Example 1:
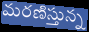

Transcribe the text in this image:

మరణిస్తున్న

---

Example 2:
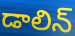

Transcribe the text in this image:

డాలిన్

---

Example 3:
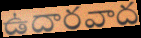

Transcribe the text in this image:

ఉదారవాద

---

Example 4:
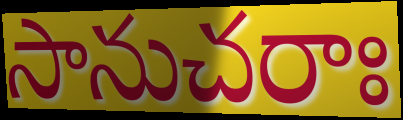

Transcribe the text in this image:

సానుచరాః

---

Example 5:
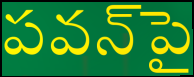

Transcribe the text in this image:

పవన్‌పై